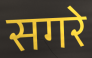
सगरे